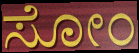
ಸೋಂ